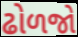
ઢોળજો